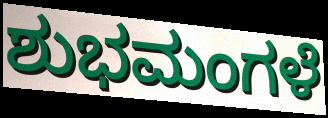
ಶುಭಮಂಗಳೆ